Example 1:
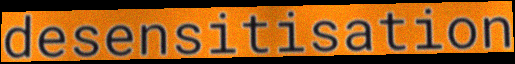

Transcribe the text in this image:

desensitisation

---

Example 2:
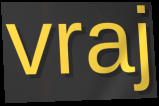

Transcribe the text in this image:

vraj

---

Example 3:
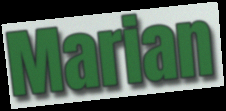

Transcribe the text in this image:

Marian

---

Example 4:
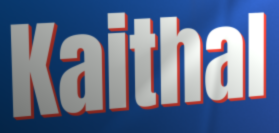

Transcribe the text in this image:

Kaithal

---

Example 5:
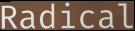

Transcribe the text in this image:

Radical